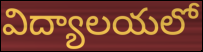
విద్యాలయలో